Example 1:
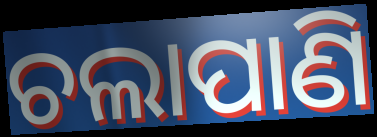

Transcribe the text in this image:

ଚଲାପାଣି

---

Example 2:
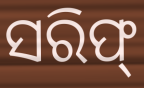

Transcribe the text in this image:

ସରିଫ୍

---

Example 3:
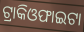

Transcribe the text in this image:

ଟ୍ରାକିଓଫାଇଟା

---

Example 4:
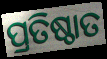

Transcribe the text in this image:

ପ୍ରତିଷ୍ଠାତ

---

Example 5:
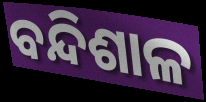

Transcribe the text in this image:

ବନ୍ଦିଶାଳ